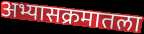
अभ्यासक्रमातला